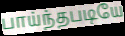
பாய்ந்தபடியே